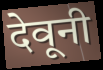
देवूनी